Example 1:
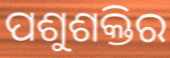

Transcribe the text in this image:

ପଶୁଶକ୍ତିର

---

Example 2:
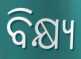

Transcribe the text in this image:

ବିକ୍ଷ୍ଯ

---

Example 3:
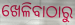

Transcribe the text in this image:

ଖେଳିବାଠାରୁ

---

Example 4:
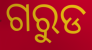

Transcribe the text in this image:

ଗରୁଡ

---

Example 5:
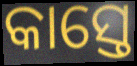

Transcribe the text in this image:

କାସ୍ତେ